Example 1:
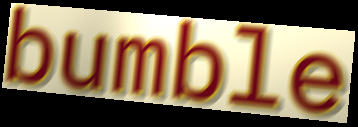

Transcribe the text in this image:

bumble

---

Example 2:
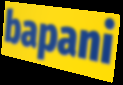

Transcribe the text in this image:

bapani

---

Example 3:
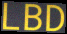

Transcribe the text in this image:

LBD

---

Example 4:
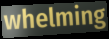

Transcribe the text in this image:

whelming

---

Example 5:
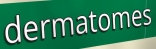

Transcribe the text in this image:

dermatomes